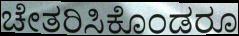
ಚೇತರಿಸಿಕೊಂಡರೂ